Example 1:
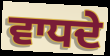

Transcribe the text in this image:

ਵਾਧਦੇ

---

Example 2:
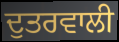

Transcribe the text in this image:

ਦੁਤਰਵਾਲੀ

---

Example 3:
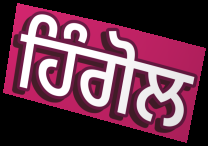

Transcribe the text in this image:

ਹਿੰਗੋਲ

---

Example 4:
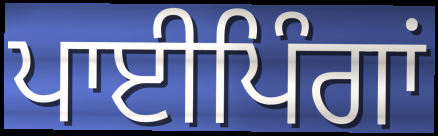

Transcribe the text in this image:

ਪਾਈਪਿੰਗਾਂ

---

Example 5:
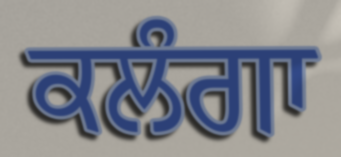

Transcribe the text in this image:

ਕਲੰਗਾ